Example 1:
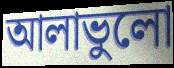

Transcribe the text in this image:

আলাভুলো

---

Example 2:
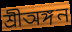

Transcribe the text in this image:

শ্রীঅঙ্গন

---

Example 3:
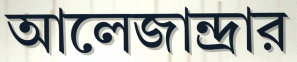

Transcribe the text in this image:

আলেজান্দ্রার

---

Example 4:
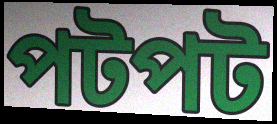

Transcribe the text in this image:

পটপট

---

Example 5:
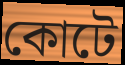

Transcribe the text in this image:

কোটে